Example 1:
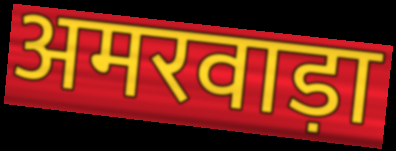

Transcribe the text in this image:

अमरवाड़ा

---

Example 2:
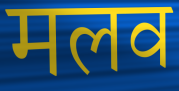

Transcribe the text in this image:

मलव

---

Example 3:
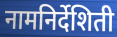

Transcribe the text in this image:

नामनिर्देशिती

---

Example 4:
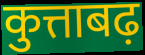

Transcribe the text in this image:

कुत्ताबढ़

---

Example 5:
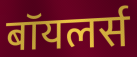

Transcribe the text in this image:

बॉयलर्स